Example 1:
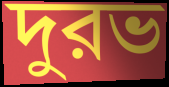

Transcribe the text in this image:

দুরভ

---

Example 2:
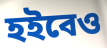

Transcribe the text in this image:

হইবেও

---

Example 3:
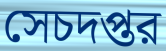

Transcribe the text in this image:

সেচদপ্তর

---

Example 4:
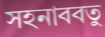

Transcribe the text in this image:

সহনাববতু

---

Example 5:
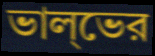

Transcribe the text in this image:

ভাল্ভের